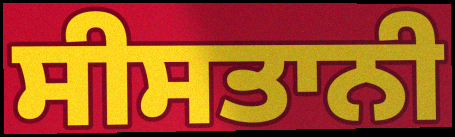
ਸੀਸਤਾਨੀ